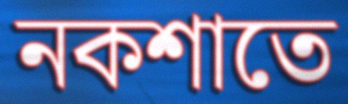
নকশাতে